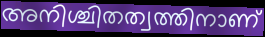
അനിശ്ചിതത്വത്തിനാണ്